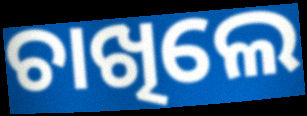
ଚାଖିଲେ